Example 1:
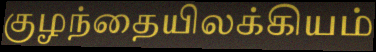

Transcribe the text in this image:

குழந்தையிலக்கியம்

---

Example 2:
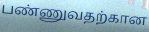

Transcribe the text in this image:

பண்ணுவதற்கான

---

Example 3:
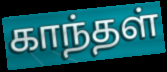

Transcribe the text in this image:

காந்தள்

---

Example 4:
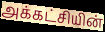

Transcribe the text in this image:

அக்கட்சியின்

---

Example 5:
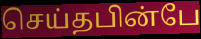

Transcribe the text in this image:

செய்தபின்பே